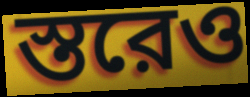
স্তরেও